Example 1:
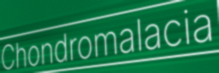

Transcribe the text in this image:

Chondromalacia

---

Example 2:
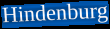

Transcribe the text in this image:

Hindenburg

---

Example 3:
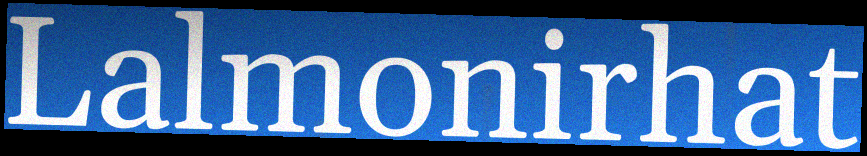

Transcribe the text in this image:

Lalmonirhat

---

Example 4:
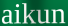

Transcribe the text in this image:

aikun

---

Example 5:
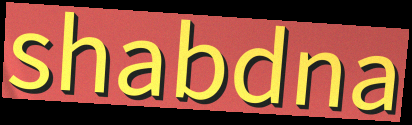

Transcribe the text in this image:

shabdna